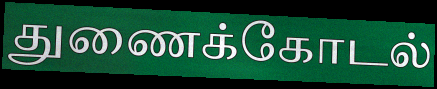
துணைக்கோடல்